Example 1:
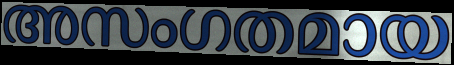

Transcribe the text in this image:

അസംഗതമായ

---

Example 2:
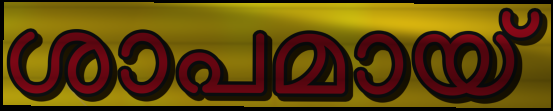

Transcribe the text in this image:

ശാപമായ്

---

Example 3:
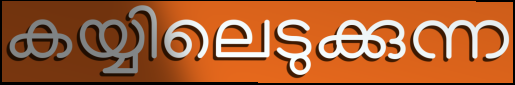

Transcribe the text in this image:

കയ്യിലെടുക്കുന്ന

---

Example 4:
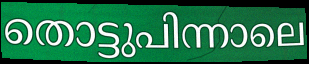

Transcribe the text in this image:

തൊട്ടുപിന്നാലെ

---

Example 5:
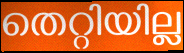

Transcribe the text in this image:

തെറ്റിയില്ല